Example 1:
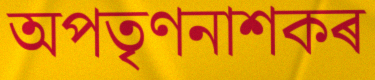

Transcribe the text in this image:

অপতৃণনাশকৰ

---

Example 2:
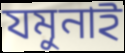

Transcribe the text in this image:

যমুনাই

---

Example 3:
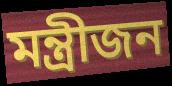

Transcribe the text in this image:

মন্ত্ৰীজন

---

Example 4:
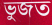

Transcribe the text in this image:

ভুজত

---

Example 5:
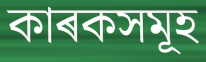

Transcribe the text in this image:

কাৰকসমূহ